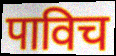
पाविच